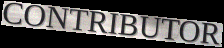
CONTRIBUTOR